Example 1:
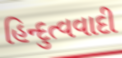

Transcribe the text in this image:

હિન્દુત્વવાદી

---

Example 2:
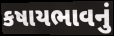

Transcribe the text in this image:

કષાયભાવનું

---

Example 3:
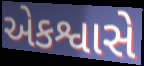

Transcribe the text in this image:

એકશ્વાસે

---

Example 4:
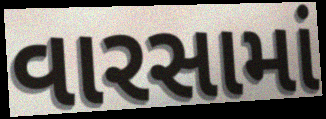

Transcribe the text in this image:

વારસામાં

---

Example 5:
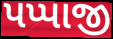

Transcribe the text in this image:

પપ્પાજી